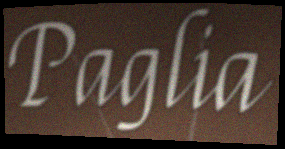
Paglia